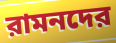
রামনদের